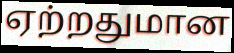
ஏற்றதுமான